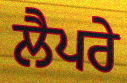
ਲੈਪਰੇ